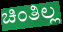
ಚಿಂತಿಲ್ಲ